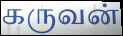
கருவன்